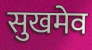
सुखमेव